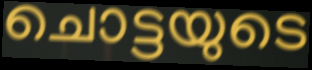
ചൊട്ടയുടെ